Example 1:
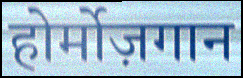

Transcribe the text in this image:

होर्मोज़गान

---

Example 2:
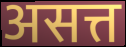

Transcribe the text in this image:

असत्त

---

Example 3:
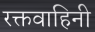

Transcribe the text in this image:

रक्तवाहिनी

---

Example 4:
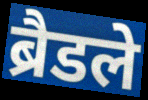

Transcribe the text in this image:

ब्रैडले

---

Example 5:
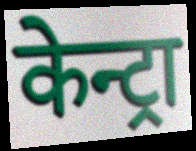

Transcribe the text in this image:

केन्ट्रा